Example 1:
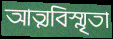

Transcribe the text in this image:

আত্মবিস্মৃতা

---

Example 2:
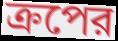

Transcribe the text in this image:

ক্রপের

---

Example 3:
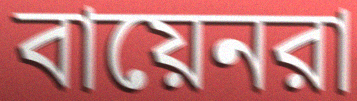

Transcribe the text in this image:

বায়েনরা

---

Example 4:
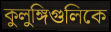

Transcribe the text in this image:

কুলুঙ্গিগুলিকে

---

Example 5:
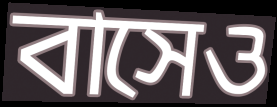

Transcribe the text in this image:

বাসেও